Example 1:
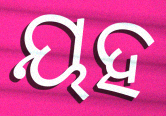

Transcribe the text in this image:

ୟହ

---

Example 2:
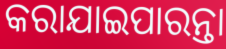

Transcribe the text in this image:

କରାଯାଇପାରନ୍ତା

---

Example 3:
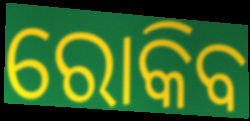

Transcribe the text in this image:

ରୋକିବ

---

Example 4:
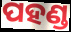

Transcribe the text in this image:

ପହଣ୍ଡ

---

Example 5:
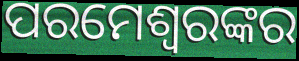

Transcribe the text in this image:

ପରମେଶ୍ୱରଙ୍କର